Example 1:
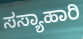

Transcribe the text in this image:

ಸಸ್ಯಾಹಾರಿ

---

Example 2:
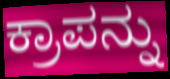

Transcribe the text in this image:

ಕ್ರಾಪನ್ನು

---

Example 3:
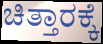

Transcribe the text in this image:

ಚಿತ್ತಾರಕ್ಕೆ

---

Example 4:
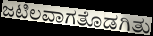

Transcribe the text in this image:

ಜಟಿಲವಾಗತೊಡಗಿತು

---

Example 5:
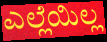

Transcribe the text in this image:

ಎಲ್ಲೆಯಿಲ್ಲ